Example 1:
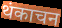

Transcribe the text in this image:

थंकाचन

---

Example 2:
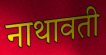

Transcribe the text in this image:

नाथावती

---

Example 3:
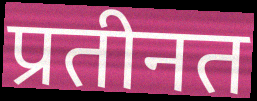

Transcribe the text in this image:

प्रतीनत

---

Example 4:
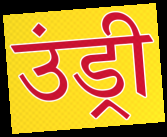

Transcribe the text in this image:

उंड्री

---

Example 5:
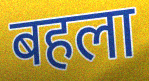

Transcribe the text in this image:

बहला